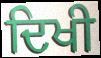
ਦਿਖੀ